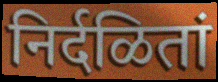
निर्दळितां